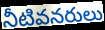
నీటివనరులు